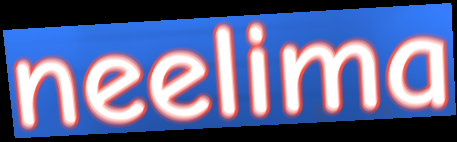
neelima